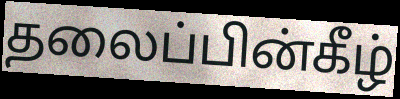
தலைப்பின்கீழ்